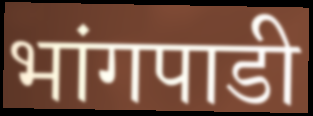
भांगपाडी